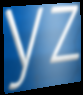
yz